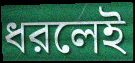
ধরলেই